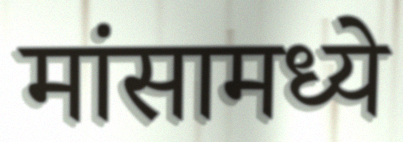
मांसामध्ये